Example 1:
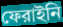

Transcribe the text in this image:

ফেরাইনি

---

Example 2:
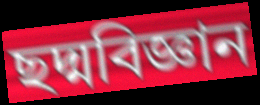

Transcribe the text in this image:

ছদ্মবিজ্ঞান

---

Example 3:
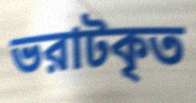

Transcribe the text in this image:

ভরাটকৃত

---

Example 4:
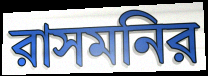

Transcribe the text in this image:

রাসমনির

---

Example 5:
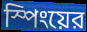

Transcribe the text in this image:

স্পিংয়ের